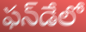
ఫన్‌డేలో